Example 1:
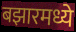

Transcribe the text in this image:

बझारमध्ये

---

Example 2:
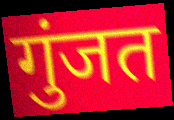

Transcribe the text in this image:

गुंजत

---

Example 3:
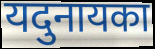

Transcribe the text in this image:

यदुनायका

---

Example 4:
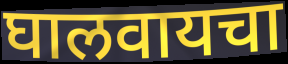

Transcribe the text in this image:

घालवायचा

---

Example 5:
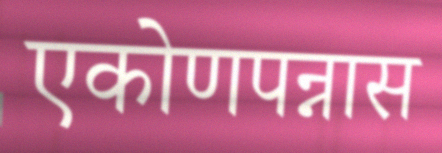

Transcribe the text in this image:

एकोणपन्नास